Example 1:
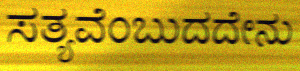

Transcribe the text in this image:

ಸತ್ಯವೆಂಬುದದೇನು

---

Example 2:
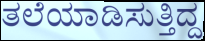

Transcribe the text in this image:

ತಲೆಯಾಡಿಸುತ್ತಿದ್ದ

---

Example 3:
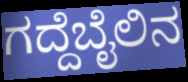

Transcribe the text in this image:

ಗದ್ದೆಬೈಲಿನ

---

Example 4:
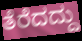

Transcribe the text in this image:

ತೆರೆದದ್ದು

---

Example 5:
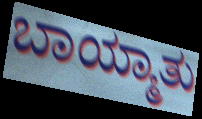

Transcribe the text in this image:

ಬಾಯ್ಮಾತು